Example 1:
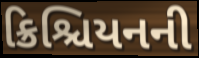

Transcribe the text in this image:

ક્રિશ્ચિયનની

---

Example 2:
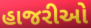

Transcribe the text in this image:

હાજરીઓ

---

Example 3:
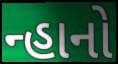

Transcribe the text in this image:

ન્હાનો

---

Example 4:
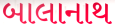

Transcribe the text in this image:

બાલાનાથ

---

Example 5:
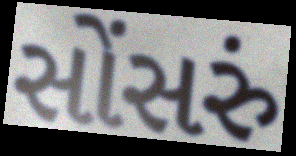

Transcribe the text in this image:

સોંસરું